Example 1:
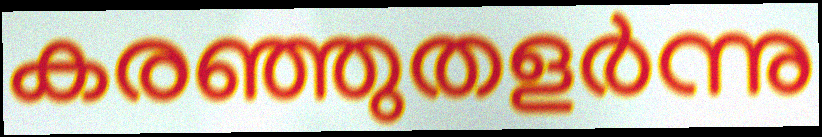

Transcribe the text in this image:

കരഞ്ഞുതളർന്നു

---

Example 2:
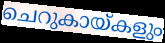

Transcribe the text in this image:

ചെറുകായ്കളും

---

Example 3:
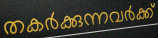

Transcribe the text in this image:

തകർക്കുന്നവർക്ക്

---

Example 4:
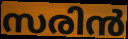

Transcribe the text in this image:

സരിൻ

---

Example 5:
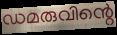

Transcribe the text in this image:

ഡമരുവിന്റെ